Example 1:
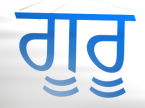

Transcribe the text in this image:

ਗੂਰੂ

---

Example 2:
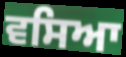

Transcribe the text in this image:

ਵਸਿਆ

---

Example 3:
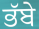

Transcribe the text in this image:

ਭੱਬੇ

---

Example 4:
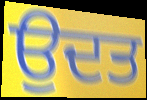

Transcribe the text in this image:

ਉਦਤ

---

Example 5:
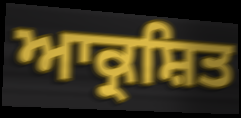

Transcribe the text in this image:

ਆਕ੍ਰਸ਼ਿਤ